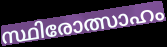
സ്ഥിരോത്സാഹം